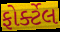
ફોર્ક્ટેલ